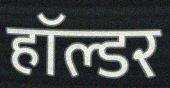
हॉल्डर